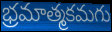
భ్రమాత్మకమగు